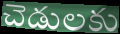
చెడులకు